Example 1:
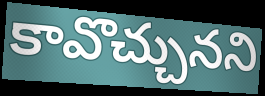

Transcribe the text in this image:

కావొచ్చునని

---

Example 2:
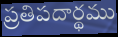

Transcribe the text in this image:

ప్రతిపదార్థము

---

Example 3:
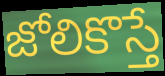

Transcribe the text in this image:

జోలికొస్తే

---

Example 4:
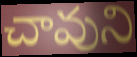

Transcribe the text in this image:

చావుని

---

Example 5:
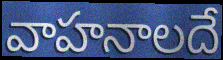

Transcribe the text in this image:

వాహనాలదే